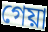
গেয়া